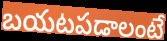
బయటపడాలంటే